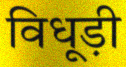
विधूड़ी